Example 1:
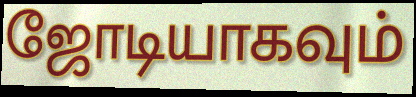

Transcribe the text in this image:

ஜோடியாகவும்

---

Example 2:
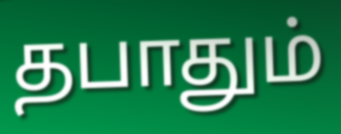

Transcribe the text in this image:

தபாதும்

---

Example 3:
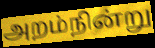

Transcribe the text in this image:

அறம்நின்று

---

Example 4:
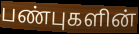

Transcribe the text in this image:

பண்புகளின்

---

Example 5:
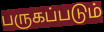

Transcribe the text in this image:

பருகப்படும்